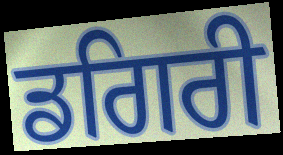
ਡਗਿਰੀ